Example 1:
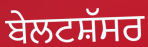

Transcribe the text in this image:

ਬੇਲਟਸ਼ੱਸਰ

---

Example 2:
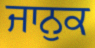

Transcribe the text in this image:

ਜਾਨੁਕ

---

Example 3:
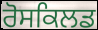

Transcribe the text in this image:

ਰੋਸਕਿਲਡ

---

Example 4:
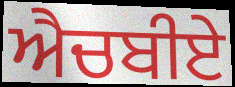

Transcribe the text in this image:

ਐਚਬੀਏ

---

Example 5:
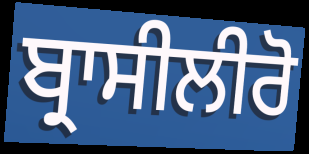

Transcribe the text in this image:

ਬ੍ਰਾਸੀਲੀਰੋ